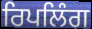
ਰਿਪਲਿੰਗ